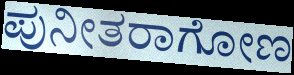
ಪುನೀತರಾಗೋಣ